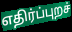
எதிர்ப்புறச்